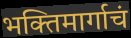
भक्तिमार्गाचं